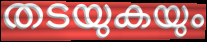
തടയുകയും